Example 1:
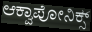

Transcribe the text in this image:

ಆಕ್ವಾಪೋನಿಕ್ಸ್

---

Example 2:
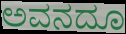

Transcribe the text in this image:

ಅವನದೂ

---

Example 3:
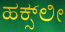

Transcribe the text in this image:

ಹಕ್ಸ್‌ಲೀ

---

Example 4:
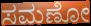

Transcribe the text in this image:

ಸಮಣೋ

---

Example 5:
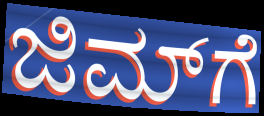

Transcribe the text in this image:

ಜಿಮ್‌ಗೆ